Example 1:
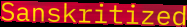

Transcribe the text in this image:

Sanskritized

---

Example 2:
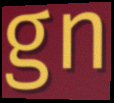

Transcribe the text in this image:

gn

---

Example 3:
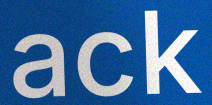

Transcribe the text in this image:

ack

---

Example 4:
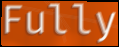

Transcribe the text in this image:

Fully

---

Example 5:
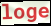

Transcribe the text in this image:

loge